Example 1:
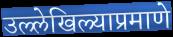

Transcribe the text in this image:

उल्लेखिल्याप्रमाणे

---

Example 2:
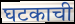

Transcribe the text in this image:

घटकाची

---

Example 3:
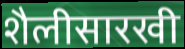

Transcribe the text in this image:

शैलीसारखी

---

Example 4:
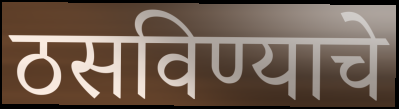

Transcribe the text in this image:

ठसविण्याचे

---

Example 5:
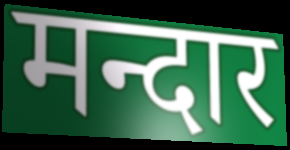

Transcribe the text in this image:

मन्दार